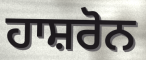
ਹਾਸ਼ਰੋਨ